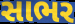
સાભર